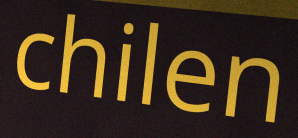
chilen